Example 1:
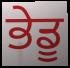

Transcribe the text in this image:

ਭੇਡੂ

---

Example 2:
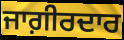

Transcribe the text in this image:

ਜਾਗ਼ੀਰਦਾਰ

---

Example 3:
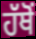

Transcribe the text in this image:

ਹੱਥੋਂ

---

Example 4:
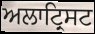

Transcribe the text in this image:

ਅਲਾਟ੍ਰਿਸਟ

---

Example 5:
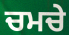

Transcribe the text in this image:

ਚਮਚੇ